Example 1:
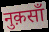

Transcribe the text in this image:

नुक़साँ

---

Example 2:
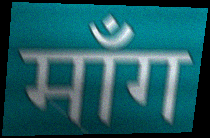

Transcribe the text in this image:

माँग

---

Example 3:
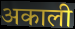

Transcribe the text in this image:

अकाली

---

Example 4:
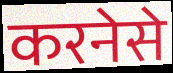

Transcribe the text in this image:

करनेसे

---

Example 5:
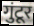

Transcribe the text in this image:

गुंटूर